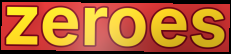
zeroes